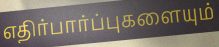
எதிர்பார்ப்புகளையும்